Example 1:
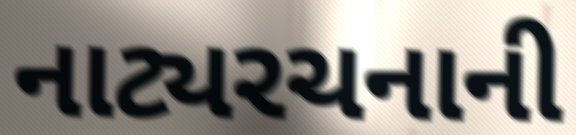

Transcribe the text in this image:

નાટ્યરચનાની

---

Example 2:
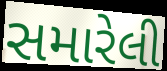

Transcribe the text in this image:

સમારેલી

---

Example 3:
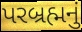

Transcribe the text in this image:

પરબ્રહ્મનું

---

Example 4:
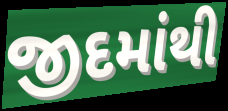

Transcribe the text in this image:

જીદમાંથી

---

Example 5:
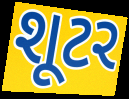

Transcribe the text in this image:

શૂટર